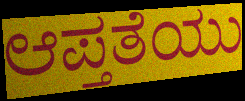
ಆಪ್ತತೆಯು